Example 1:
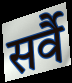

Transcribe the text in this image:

सर्वै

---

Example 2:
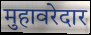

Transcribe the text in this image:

मुहावरेदार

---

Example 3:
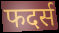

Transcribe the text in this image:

फदर्स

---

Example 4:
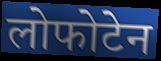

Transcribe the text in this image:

लोफोटेन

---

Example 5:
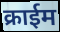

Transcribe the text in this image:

क्राईम